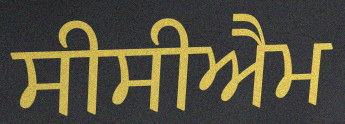
ਸੀਸੀਐਮ